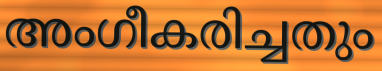
അംഗീകരിച്ചതും